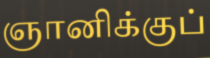
ஞானிக்குப்